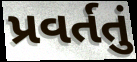
પ્રવર્તતું